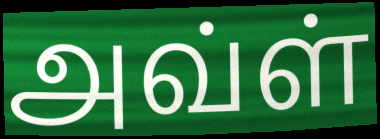
அவ்ள்